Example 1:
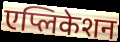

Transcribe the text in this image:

एप्लिकेशन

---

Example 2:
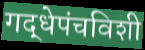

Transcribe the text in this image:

गद्धेपंचविशी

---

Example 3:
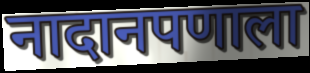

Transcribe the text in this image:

नादानपणाला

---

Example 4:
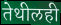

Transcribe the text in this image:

तेथीलही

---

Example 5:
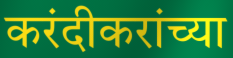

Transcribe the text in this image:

करंदीकरांच्या